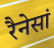
रैनेसां